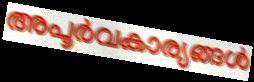
അപൂർവകാര്യങ്ങൾ